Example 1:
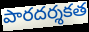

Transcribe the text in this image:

పారదర్శకత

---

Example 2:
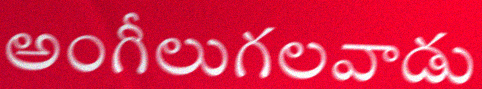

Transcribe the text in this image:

అంగీలుగలవాడు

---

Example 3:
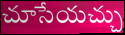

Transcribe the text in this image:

చూసేయచ్చు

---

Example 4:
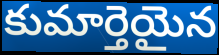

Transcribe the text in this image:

కుమార్తెయైన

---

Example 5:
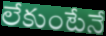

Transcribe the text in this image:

లేకుంటేనే